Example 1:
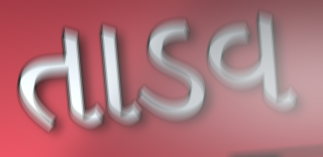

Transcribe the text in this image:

તાડવ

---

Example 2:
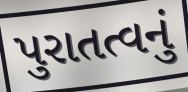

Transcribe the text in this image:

પુરાતત્વનું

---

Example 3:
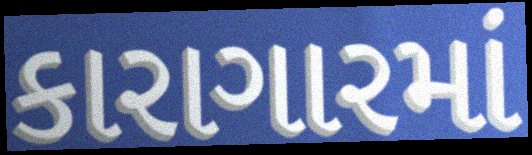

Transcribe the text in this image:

કારાગારમાં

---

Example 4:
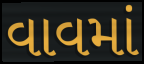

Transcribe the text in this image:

વાવમાં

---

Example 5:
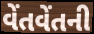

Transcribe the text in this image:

વેંતવેંતની